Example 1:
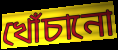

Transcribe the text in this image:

খোঁচানো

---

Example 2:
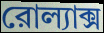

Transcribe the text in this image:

রোল্যাক্স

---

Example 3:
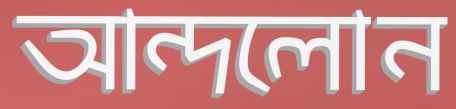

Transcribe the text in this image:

আন্দলোন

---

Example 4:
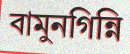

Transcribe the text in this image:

বামুনগিন্নি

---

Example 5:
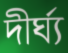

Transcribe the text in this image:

দীর্ঘ্য